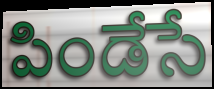
పిండేసే